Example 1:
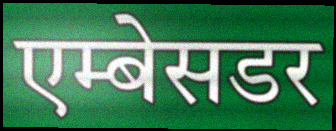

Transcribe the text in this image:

एम्‍बेसडर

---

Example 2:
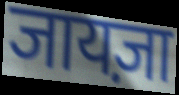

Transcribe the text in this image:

जायज़ा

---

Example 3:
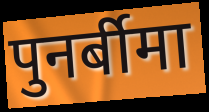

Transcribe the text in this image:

पुनर्बीमा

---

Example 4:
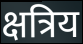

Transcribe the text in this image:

क्षत्रिय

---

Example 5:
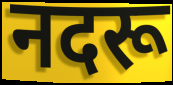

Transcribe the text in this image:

नदरू